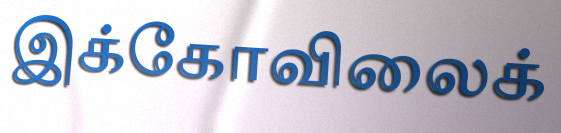
இக்கோவிலைக்